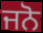
ਜਨੋ